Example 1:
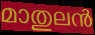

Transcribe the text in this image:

മാതുലൻ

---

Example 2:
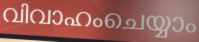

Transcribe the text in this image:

വിവാഹംചെയ്യാം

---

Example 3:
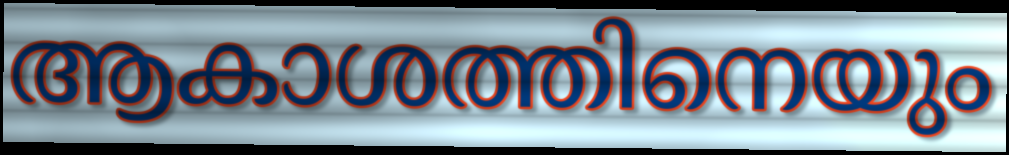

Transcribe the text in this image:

ആകാശത്തിനെയും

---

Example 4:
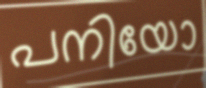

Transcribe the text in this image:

പനിയോ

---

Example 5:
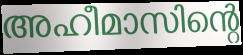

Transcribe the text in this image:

അഹീമാസിന്റെ